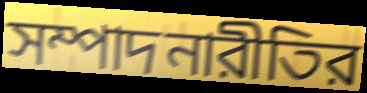
সম্পাদনারীতির